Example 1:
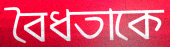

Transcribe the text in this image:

বৈধতাকে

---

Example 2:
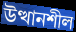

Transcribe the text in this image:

উত্থানশীল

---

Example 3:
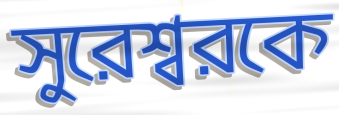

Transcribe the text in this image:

সুরেশ্বরকে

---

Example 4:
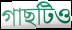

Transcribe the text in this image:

গাছটিও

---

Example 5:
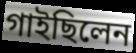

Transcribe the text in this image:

গাইছিলেন